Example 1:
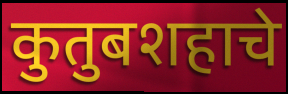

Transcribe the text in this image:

कुतुबशहाचे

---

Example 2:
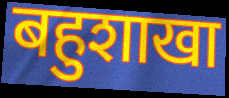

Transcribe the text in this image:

बहुशाखा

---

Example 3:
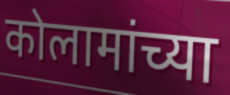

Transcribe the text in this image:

कोलामांच्या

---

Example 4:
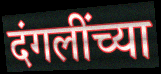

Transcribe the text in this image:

दंगलींच्या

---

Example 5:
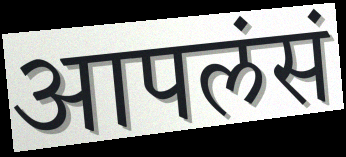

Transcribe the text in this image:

आपलंसं